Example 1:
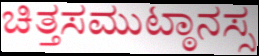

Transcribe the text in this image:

ಚಿತ್ತಸಮುಟ್ಠಾನಸ್ಸ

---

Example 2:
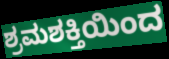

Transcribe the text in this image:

ಶ್ರಮಶಕ್ತಿಯಿಂದ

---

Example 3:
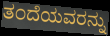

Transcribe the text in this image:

ತಂದೆಯವರನ್ನು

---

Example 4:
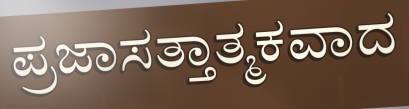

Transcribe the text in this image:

ಪ್ರಜಾಸತ್ತಾತ್ಮಕವಾದ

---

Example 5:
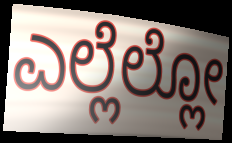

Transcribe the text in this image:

ಎಲ್ಲೆಲ್ಲೋ